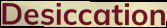
Desiccation